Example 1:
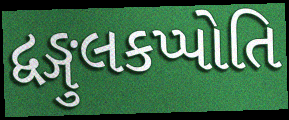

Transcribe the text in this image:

દ્વઙ્ગુલકપ્પોતિ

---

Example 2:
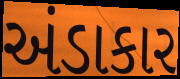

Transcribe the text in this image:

અંડાકાર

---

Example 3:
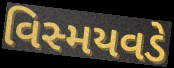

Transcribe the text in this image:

વિસ્મયવડે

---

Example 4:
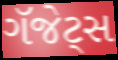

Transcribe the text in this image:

ગૅજેટ્સ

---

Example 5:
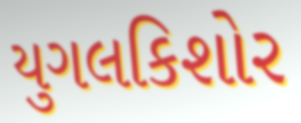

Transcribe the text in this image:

યુગલકિશોર